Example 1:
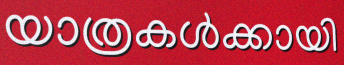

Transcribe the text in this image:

യാത്രകൾക്കായി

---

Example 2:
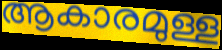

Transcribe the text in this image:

ആകാരമുള്ള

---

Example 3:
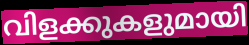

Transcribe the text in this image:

വിളക്കുകളുമായി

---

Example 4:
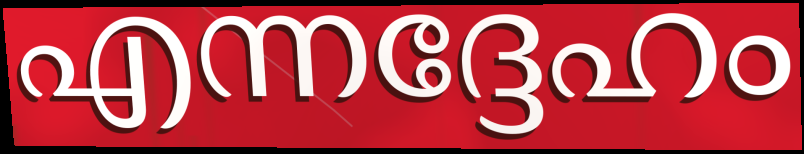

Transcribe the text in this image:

എന്നദ്ദേഹം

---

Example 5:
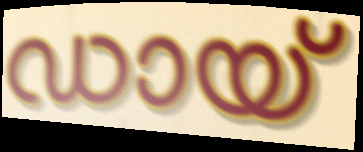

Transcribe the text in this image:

ഡായ്